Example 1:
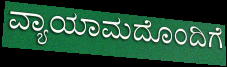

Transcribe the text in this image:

ವ್ಯಾಯಾಮದೊಂದಿಗೆ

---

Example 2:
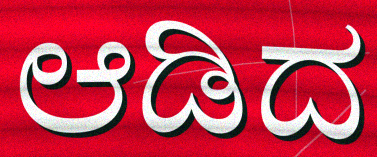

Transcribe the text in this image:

ಆಡಿದ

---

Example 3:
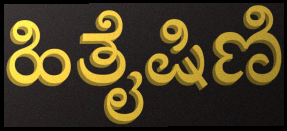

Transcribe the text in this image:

ಹಿತೈಷಿಣಿ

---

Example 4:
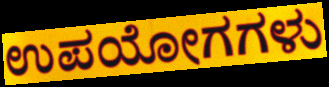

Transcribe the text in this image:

ಉಪಯೋಗಗಳು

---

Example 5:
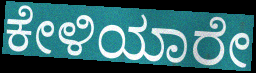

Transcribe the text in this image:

ಕೇಳಿಯಾರೇ